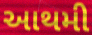
આથમી